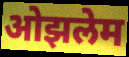
ओझलेम